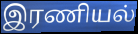
இரணியல்